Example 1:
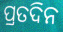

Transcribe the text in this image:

ପ୍ରତଦିନ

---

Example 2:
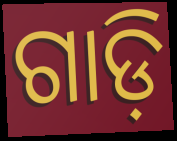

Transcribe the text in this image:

ଗାଡ଼ି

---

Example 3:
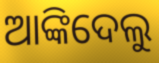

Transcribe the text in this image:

ଆଙ୍କିଦେଲୁ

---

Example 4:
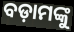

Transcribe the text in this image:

ବଡ଼ାମଙ୍କୁ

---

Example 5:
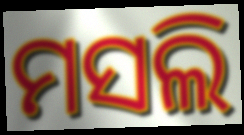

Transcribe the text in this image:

ମସଲି